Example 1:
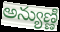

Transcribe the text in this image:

అన్యుణ్ణి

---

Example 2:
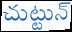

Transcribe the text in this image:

చుట్టున్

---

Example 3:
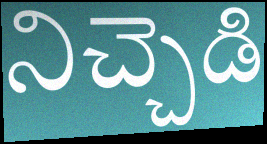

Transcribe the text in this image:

నిచ్చెడి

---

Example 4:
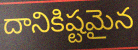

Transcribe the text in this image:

దానికిష్టమైన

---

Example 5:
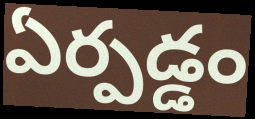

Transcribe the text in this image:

ఏర్పడ్డం